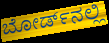
ಬೋರ್ಡ್‌ನಲ್ಲಿ